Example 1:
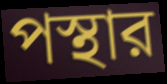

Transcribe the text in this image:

পস্থার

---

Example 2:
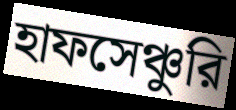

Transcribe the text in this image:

হাফসেঞ্চুরি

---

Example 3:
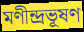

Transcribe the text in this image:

মণীন্দ্রভূষণ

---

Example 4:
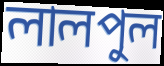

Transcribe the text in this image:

লালপুল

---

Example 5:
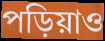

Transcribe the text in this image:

পড়িয়াও